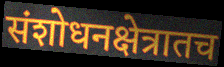
संशोधनक्षेत्रातच